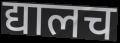
द्यालच